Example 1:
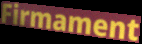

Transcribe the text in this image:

Firmament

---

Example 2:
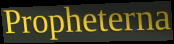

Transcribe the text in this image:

Propheterna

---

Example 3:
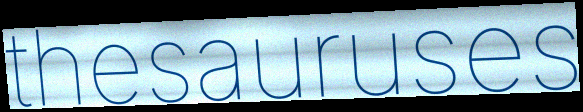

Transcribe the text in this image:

thesauruses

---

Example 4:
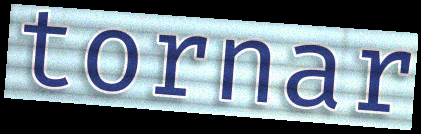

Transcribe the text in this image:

tornar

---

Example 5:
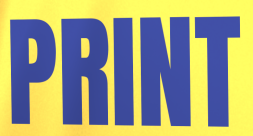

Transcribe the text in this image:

PRINT